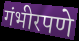
गंभीरपणे